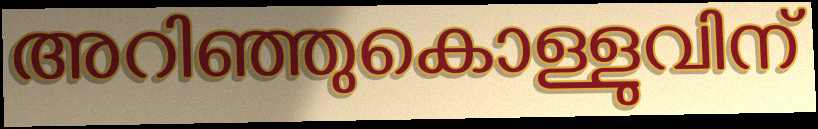
അറിഞ്ഞുകൊള്ളുവിന്